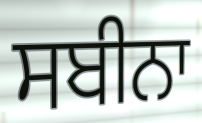
ਸਬੀਨਾ